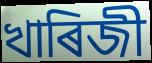
খাৰিজী